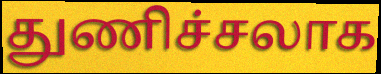
துணிச்சலாக